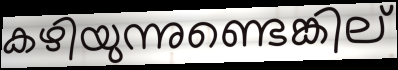
കഴിയുന്നുണ്ടെങ്കില്